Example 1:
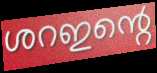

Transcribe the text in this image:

ശറഇന്റെ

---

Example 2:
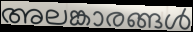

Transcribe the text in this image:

അലങ്കാരങ്ങൾ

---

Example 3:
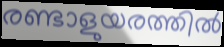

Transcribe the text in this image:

രണ്ടാളുയരത്തിൽ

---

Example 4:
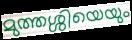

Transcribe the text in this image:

മുത്തശ്ശിയെയും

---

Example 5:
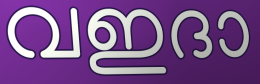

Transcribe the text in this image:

വഇദാ